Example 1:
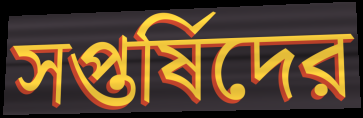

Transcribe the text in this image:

সপ্তর্ষিদের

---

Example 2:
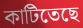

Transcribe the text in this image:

কাটিতেছে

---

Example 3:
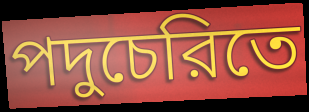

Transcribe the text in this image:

পদুচেরিতে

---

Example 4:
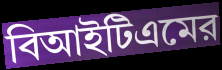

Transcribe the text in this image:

বিআইটিএমের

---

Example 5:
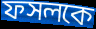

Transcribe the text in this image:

ফসলকে